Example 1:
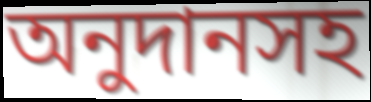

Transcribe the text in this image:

অনুদানসহ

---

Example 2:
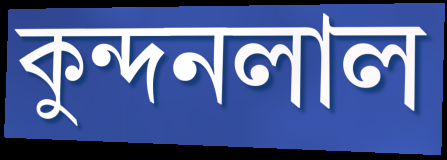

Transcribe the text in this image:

কুন্দনলাল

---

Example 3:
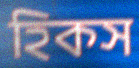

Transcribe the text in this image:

হিকস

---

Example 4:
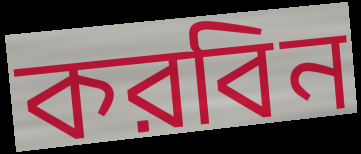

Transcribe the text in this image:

করবিন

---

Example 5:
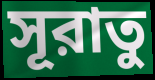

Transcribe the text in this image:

সূরাতু